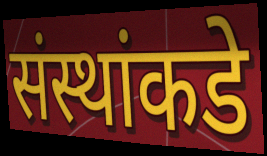
संस्थांकडे